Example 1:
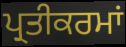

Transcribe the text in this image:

ਪ੍ਰਤੀਕਰਮਾਂ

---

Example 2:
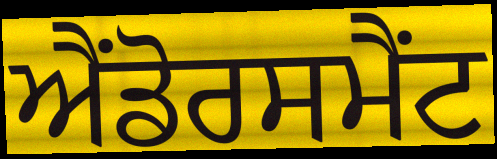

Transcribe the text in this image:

ਐਂਡੋਰਸਮੈਂਟ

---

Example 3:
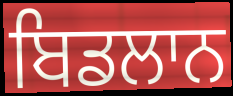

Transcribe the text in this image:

ਬਿਡਲਾਨ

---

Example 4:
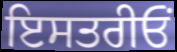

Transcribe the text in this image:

ਇਸਤਰੀਓਂ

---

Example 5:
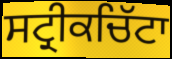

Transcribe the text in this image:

ਸਟ੍ਰੀਕਚਿੱਟਾ